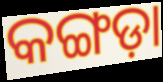
କଙ୍ଗଡ଼ା